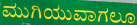
ಮುಗಿಯುವಾಗಲೂ